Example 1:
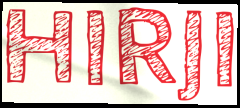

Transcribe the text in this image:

HIRJI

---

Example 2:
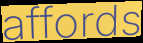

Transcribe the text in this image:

affords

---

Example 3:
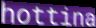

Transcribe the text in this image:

hottina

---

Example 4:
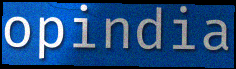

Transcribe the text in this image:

opindia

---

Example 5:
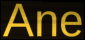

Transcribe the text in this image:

Ane